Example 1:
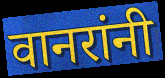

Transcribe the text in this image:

वानरांनी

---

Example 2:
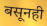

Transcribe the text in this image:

बसूनही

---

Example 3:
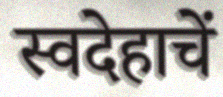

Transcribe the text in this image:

स्वदेहाचें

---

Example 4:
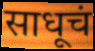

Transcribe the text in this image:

साधूचं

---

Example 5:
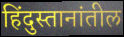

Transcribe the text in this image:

हिंदुस्तानांतील